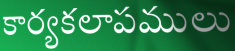
కార్యకలాపములు